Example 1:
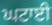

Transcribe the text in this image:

ਘਟਾਈ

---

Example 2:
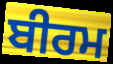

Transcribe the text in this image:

ਬੀਰਮ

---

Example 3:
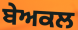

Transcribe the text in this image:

ਬੇਅਕਲ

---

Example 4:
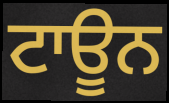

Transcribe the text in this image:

ਟਾਊਨ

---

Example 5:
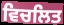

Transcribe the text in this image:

ਵਿਚਲਿਤ